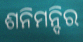
ଶନିମନ୍ଦିର